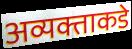
अव्यक्ताकडे